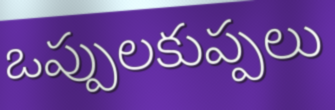
ఒప్పులకుప్పలు